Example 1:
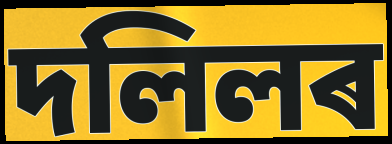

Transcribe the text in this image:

দলিলৰ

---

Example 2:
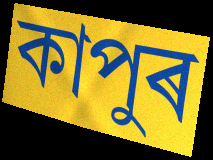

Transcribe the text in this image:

কাপুৰ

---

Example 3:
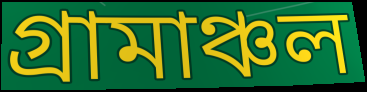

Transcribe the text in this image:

গ্ৰামাঞ্চল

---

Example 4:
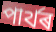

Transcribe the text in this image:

পাৰ্থৰ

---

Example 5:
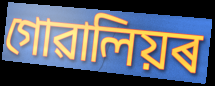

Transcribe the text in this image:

গোৱালিয়ৰ